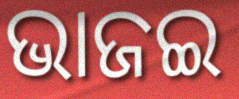
ଭାଜଇ